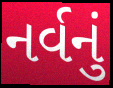
નર્વનું